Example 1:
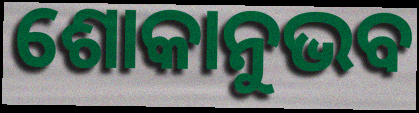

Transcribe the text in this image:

ଶୋକାନୁଭବ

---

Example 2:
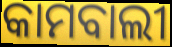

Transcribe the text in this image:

କାମବାଲୀ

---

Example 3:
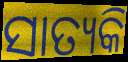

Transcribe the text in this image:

ସାତ୍ଯକି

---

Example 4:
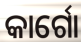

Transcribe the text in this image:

କାର୍ଗୋ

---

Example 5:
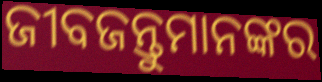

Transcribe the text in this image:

ଜୀବଜନ୍ତୁମାନଙ୍କର